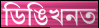
ডিঙিখনত